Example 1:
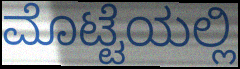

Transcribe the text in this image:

ಮೊಟ್ಟೆಯಲ್ಲಿ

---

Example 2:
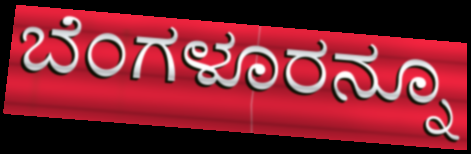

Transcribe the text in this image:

ಬೆಂಗಳೂರನ್ನೂ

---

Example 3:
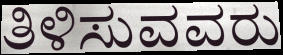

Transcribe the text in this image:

ತಿಳಿಸುವವರು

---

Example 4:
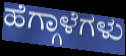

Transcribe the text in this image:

ಹೆಗ್ಗಾಳೆಗಳು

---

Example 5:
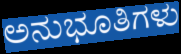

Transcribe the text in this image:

ಅನುಭೂತಿಗಳು